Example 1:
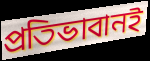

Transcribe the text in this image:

প্রতিভাবানই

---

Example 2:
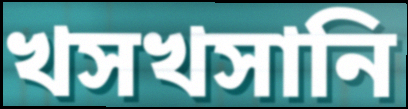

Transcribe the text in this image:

খসখসানি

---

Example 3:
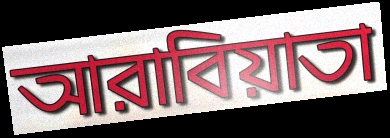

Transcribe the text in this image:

আরাবিয়াতা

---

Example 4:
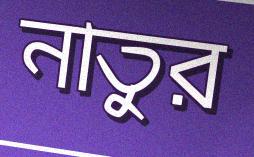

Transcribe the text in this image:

নাতুর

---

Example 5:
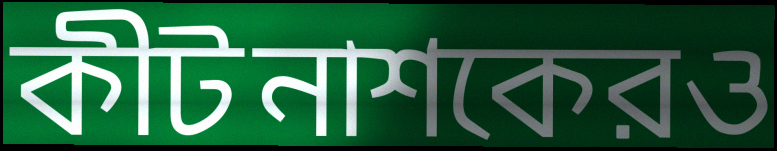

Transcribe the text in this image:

কীটনাশকেরও